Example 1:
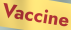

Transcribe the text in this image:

Vaccine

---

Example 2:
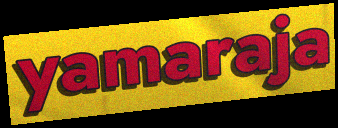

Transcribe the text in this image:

yamaraja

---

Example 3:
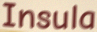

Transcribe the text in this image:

Insula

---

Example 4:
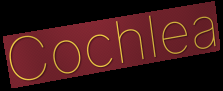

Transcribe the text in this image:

Cochlea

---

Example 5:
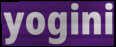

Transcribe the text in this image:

yogini